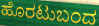
ಹೊರಟುಬಂದ